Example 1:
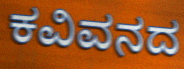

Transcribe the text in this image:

ಕವಿವನದ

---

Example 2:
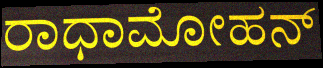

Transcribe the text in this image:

ರಾಧಾಮೋಹನ್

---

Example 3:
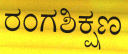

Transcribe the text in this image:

ರಂಗಶಿಕ್ಷಣ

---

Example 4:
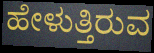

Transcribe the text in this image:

ಹೇಳುತ್ತಿರುವ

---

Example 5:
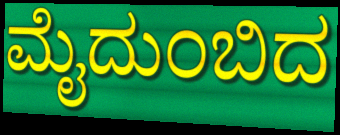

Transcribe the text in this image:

ಮೈದುಂಬಿದ